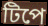
টিপে